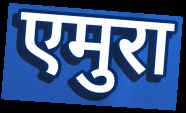
एमुरा